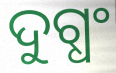
ଦୁଗ୍ଧଂ